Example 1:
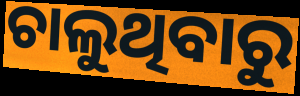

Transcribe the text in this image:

ଚାଲୁଥିବାରୁ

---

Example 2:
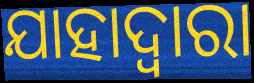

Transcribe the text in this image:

ଯାହାଦ୍ୱାରା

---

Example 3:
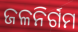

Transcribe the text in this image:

ଜଳନିର୍ଗମ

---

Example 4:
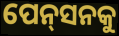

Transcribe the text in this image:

ପେନ୍‌ସନକୁ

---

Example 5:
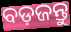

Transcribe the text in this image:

ବଡ଼ଜନ୍ତୁ